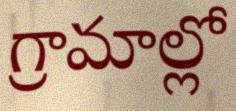
గ్రామాల్లో